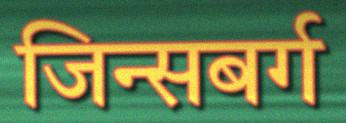
जिन्सबर्ग